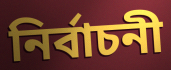
নিৰ্বাচনী